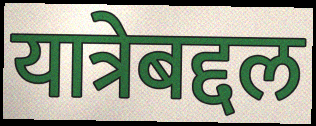
यात्रेबद्दल